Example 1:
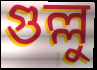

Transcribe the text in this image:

গুল্লু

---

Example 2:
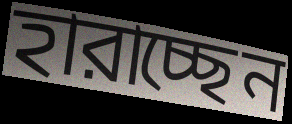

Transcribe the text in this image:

হারাচ্ছেন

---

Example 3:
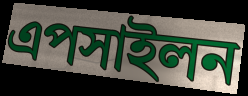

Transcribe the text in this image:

এপসাইলন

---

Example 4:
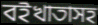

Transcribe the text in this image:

বইখাতাসহ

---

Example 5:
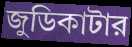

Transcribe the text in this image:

জুডিকাটার